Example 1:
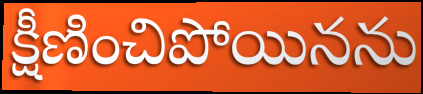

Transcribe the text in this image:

క్షీణించిపోయినను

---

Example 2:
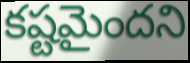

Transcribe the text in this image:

కష్టమైందని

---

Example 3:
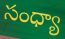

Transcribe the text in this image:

సంధ్యా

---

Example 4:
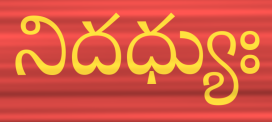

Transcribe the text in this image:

నిదధ్యుః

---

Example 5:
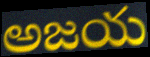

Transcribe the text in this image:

అజయ